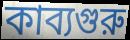
কাব্যগুরু